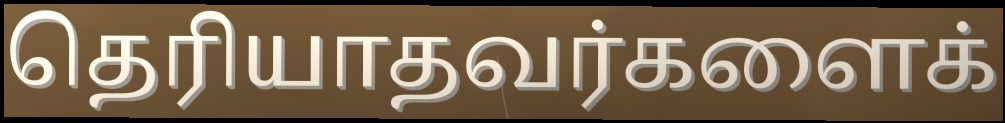
தெரியாதவர்களைக்